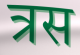
त्रस